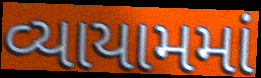
વ્યાયામમાં